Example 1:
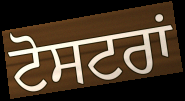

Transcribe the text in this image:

ਟੋਸਟਰਾਂ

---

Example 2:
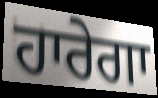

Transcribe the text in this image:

ਹਾਰੇਗਾ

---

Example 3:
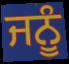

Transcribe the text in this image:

ਜਨੂੰ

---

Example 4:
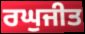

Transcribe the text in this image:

ਰਘੁਜੀਤ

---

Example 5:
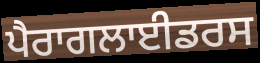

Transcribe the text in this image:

ਪੈਰਾਗਲਾਈਡਰਸ